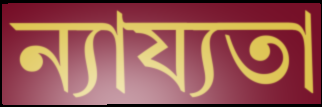
ন্যায্যতা